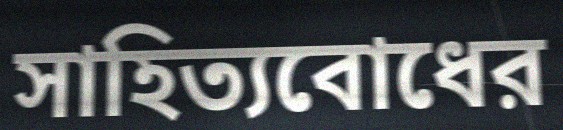
সাহিত্যবোধের